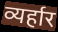
व्यर्हार